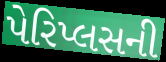
પેરિપ્લસની